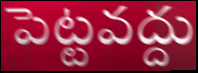
పెట్టవద్దు